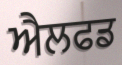
ਐਲਫਡ